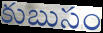
కుబుసం